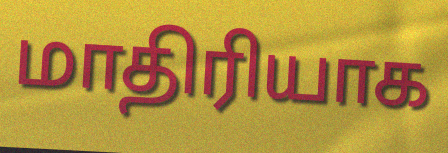
மாதிரியாக